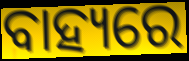
ବାହ୍ୟରେ